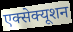
एक्सेक्यूशन